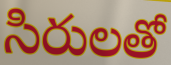
సిరులతో